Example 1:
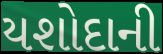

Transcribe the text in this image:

યશોદાની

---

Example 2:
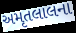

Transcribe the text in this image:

અમૃતલાલના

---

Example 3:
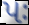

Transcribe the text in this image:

પઃ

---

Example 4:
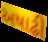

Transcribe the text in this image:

અષાઢી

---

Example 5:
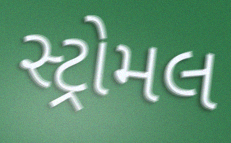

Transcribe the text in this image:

સ્ટ્રોમલ